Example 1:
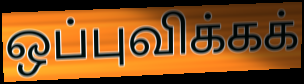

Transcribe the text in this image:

ஒப்புவிக்கக்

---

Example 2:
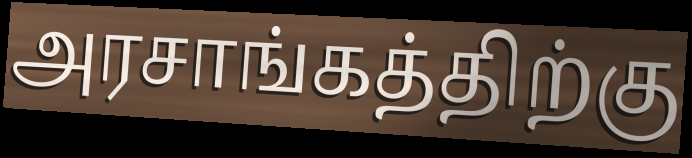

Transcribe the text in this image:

அரசாங்கத்திற்கு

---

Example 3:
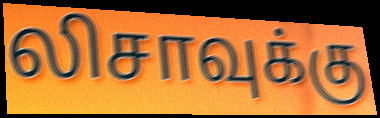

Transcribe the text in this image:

லிசாவுக்கு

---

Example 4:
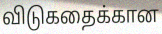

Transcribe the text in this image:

விடுகதைக்கான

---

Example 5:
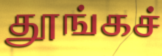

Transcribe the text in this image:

தூங்கச்